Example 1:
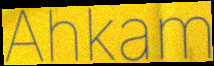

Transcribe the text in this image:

Ahkam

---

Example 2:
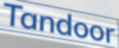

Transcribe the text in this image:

Tandoor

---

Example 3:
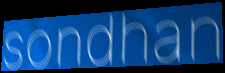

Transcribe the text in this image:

sondhan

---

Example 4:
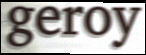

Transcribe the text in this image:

geroy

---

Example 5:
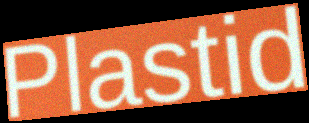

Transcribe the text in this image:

Plastid